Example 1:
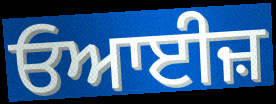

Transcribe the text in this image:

ਓਆਈਜ਼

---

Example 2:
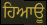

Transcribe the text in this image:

ਹਿਆਊ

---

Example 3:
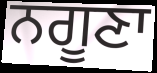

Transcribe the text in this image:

ਨਗੂਣਾ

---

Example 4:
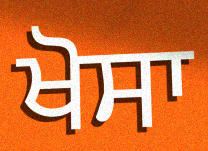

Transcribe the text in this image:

ਖੋਸਾ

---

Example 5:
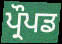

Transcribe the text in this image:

ਪ੍ਰੌਪਡ